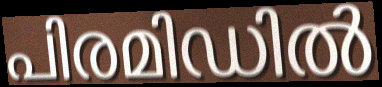
പിരമിഡിൽ